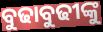
ବୁଢାବୁଢୀଙ୍କୁ